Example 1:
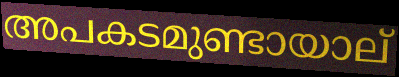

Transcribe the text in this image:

അപകടമുണ്ടായാല്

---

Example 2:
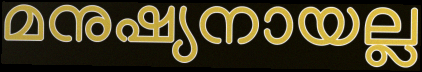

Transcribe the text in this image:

മനുഷ്യനായല്ല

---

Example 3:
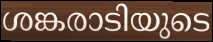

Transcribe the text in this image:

ശങ്കരാടിയുടെ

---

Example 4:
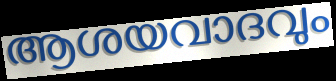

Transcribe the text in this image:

ആശയവാദവും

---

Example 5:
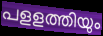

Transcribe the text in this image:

പളളത്തിയും